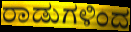
ರಾಡುಗಳಿಂದ